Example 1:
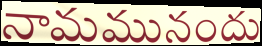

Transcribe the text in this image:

నామమునందు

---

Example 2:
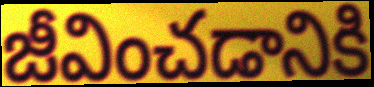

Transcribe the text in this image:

జీవించడానికి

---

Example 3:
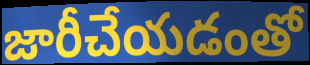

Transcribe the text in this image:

జారీచేయడంతో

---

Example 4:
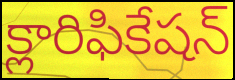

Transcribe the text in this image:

క్లారిఫికేషన్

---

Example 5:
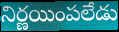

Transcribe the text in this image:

నిర్ణయింపలేడు